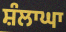
ਸ਼ੰਲਾਘਾ